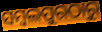
ସମ୍ବଲପୁରଠାରୁ